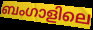
ബംഗാളിലെ